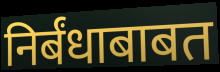
निर्बंधाबाबत